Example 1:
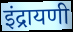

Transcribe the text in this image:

इंद्रायणी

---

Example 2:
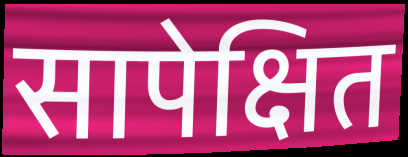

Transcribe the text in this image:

सापेक्षित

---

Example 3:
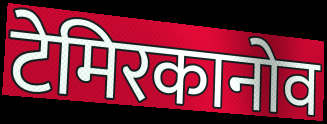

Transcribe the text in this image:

टेमिरकानोव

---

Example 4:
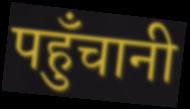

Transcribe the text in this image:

पहुँचानी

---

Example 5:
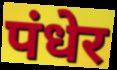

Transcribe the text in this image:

पंधेर